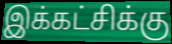
இக்கட்சிக்கு